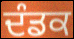
ਦੰਡਕ